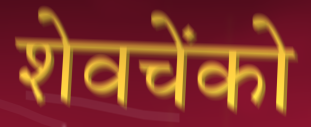
शेवचेंको